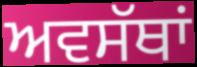
ਅਵਸੱਥਾਂ